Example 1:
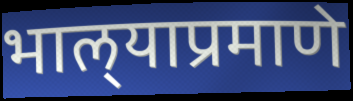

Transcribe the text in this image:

भाल्याप्रमाणे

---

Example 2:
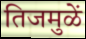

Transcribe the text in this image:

तिजमुळें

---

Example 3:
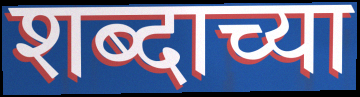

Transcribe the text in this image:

शब्दाच्या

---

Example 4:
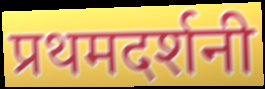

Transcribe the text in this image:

प्रथमदर्शनी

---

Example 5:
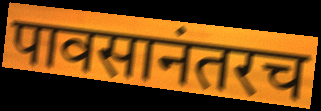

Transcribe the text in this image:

पावसानंतरच